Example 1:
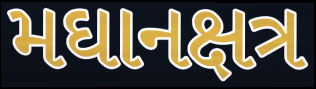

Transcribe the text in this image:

મઘાનક્ષત્ર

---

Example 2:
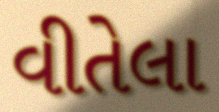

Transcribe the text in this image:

વીતેલા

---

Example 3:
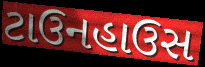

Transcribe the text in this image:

ટાઉનહાઉસ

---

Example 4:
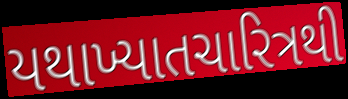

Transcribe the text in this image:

યથાખ્યાતચારિત્રથી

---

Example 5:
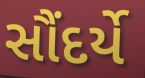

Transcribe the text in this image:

સૌંદર્યે